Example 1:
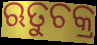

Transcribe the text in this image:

ଋତୁଚକ୍ର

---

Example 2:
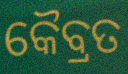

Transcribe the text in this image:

କୈବ୍ରତ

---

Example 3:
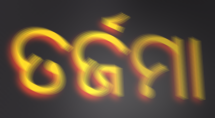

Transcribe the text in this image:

ତର୍ଜମା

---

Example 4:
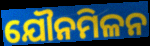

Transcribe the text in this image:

ଯୌନମିଳନ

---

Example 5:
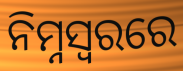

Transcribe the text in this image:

ନିମ୍ନସ୍ଵରରେ